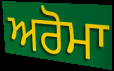
ਅਰੋਮਾ